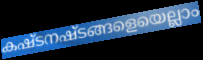
കഷ്ടനഷ്ടങ്ങളെയെല്ലാം